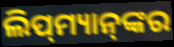
ଲିପ୍‌ମ୍ୟାନ୍‌ଙ୍କର